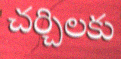
చర్చిలకు